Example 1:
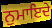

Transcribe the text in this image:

ਨੁਮਾਇਦੇ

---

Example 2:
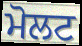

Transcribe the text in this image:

ਮੋਲਟ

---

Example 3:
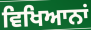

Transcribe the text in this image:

ਵਿਖਿਆਨਾਂ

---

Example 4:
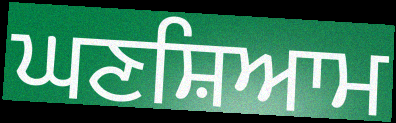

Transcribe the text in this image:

ਘਣਸ਼ਿਆਮ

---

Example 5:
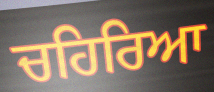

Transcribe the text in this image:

ਚਹਿਰਿਆ